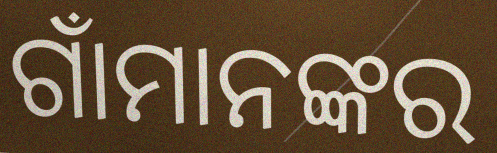
ଗାଁମାନଙ୍କର